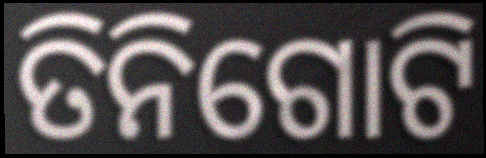
ତିନିଗୋଟି